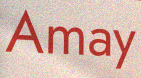
Amay